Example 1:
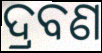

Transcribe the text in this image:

ଦ୍ରବଣ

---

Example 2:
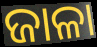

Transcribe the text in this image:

ଜାଳା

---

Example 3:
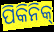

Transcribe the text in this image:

ପିକିନିକ୍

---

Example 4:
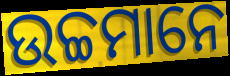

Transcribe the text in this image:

ଉଚ୍ଚମାନେ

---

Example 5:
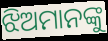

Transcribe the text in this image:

ଝିଅମାନଙ୍କୁ